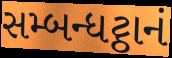
સમ્બન્ધટ્ઠાનં